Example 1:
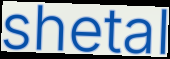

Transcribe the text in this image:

shetal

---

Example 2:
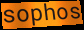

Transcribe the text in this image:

sophos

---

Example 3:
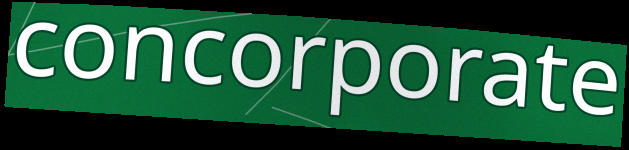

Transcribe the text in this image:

concorporate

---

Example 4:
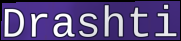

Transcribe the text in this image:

Drashti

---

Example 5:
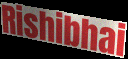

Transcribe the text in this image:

Rishibhai